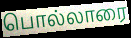
பொல்லாரை